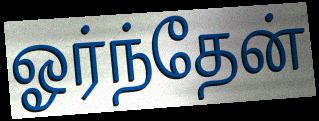
ஓர்ந்தேன்